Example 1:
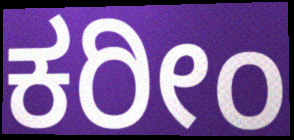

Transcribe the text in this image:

ಕರೀಂ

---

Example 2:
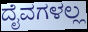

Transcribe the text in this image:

ದೈವಗಳಲ್ಲ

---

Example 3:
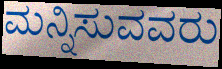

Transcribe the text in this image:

ಮನ್ನಿಸುವವರು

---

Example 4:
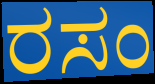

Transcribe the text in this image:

ರಸಂ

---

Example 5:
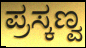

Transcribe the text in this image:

ಪ್ರಸ್ಕಣ್ವ